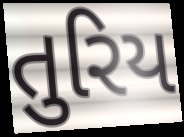
તુરિય